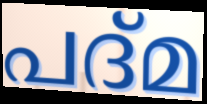
പദ്മ